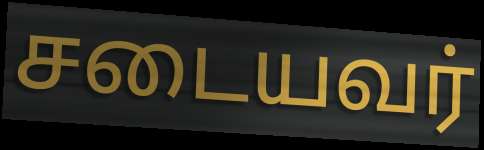
சடையவர்